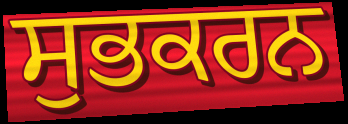
ਸੁਭਕਰਨ